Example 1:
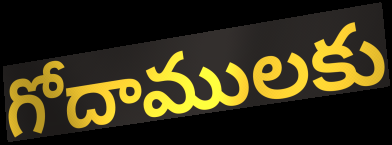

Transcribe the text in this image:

గోదాములకు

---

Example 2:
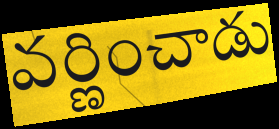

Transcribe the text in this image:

వర్ణించాడు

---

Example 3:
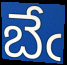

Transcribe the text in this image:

బేఁ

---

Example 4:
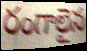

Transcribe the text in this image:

రంగాలైన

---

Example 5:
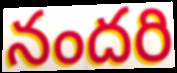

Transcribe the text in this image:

నందరి